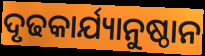
ଦୃଢକାର୍ଯ୍ୟାନୁଷ୍ଠାନ